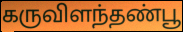
கருவிளந்தண்பூ